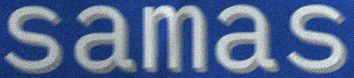
samas